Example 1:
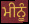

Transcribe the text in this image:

ਮੀਨੂੰ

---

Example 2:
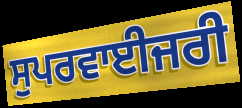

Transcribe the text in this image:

ਸੁਪਰਵਾਈਜਰੀ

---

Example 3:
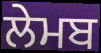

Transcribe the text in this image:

ਲੇਮਬ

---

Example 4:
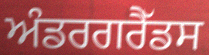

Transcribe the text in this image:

ਅੰਡਰਗਰੈੱਡਸ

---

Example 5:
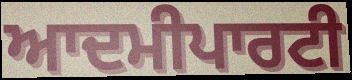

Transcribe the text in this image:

ਆਦਮੀਪਾਰਟੀ